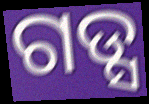
ଗଡ୍ସ